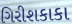
ગિરીશકાકા